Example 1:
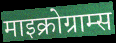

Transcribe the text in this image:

माइक्रोग्राम्स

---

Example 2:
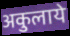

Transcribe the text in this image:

अकुलाये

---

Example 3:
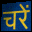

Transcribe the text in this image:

चरें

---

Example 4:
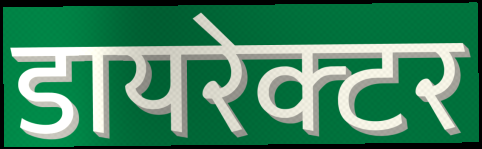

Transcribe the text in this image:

डायरेक्‍टर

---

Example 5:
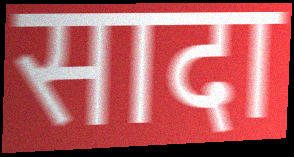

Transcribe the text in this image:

सादा